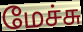
மேச்சு